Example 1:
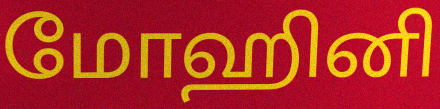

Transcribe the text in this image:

மோஹினி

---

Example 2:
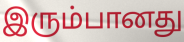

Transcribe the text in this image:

இரும்பானது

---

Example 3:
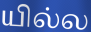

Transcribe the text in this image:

யில்ல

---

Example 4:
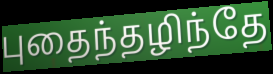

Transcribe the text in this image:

புதைந்தழிந்தே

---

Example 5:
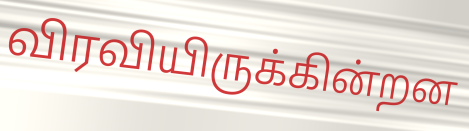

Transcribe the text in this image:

விரவியிருக்கின்றன